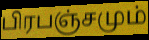
பிரபஞ்சமும்